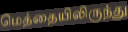
மெத்தையிலிருந்து